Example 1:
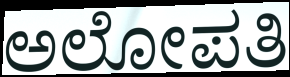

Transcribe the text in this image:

ಅಲೋಪತಿ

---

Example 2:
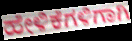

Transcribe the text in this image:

ಹೇಳಿಕೆಗಳಿಗಾಗಿ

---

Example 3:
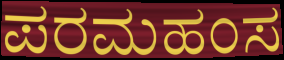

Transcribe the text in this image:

ಪರಮಹಂಸ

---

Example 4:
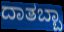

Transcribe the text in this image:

ದಾತಬ್ಬಾ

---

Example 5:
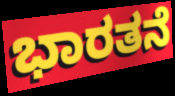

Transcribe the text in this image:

ಭಾರತನೆ